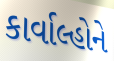
કાર્વાલ્હોને